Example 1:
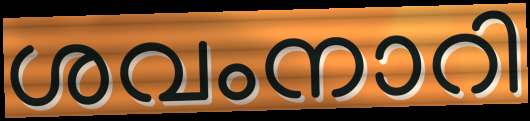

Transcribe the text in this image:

ശവംനാറി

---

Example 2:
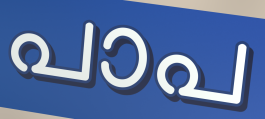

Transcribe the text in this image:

പാപ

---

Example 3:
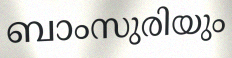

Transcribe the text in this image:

ബാംസുരിയും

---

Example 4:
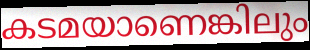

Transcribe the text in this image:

കടമയാണെങ്കിലും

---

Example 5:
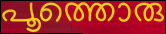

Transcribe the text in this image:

പൂത്തൊരു